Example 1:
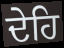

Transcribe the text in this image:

ਦੇਹਿ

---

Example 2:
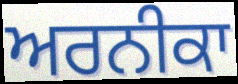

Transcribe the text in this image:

ਅਰਨੀਕਾ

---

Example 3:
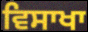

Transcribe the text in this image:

ਵਿਸਾਖਾ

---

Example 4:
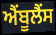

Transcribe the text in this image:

ਐਂਬੂਲੈਂਸ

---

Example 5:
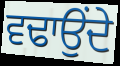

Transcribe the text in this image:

ਵਢਾਉਂਦੇ